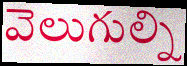
వెలుగుల్ని